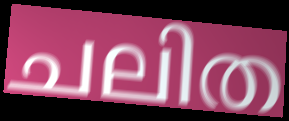
ചലിത